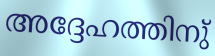
അദ്ദേഹത്തിനു്